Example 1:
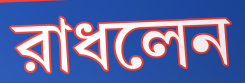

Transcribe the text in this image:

রাধলেন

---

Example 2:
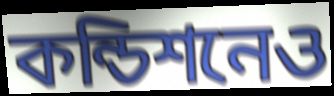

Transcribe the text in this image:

কন্ডিশনেও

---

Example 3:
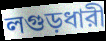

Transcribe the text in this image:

লগুড়ধারী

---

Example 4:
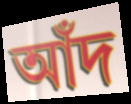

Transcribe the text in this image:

আঁদ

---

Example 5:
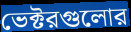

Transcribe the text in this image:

ভেক্টরগুলোর